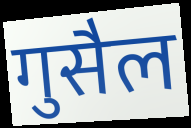
गुसैल